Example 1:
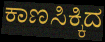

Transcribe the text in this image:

ಕಾಣಸಿಕ್ಕಿದ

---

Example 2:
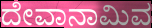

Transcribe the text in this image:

ದೇವಾನಾಮಿವ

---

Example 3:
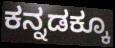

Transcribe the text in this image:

ಕನ್ನಡಕ್ಕೂ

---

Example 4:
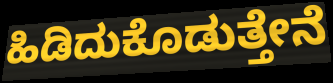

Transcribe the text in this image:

ಹಿಡಿದುಕೊಡುತ್ತೇನೆ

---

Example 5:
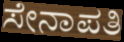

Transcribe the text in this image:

ಸೇನಾಪತಿ